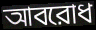
আবরোধ